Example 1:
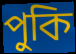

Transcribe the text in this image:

পুকি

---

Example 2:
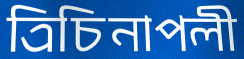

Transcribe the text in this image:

ত্রিচিনাপলী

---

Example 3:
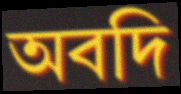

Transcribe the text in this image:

অবদি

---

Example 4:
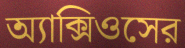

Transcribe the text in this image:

অ্যাক্সিওসের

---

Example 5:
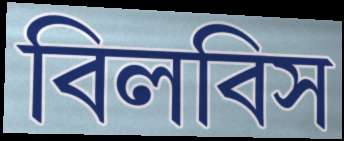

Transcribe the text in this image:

বিলবিস